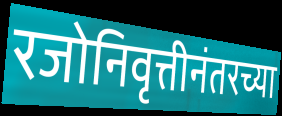
रजोनिवृत्तीनंतरच्या